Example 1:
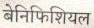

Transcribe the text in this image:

बेनिफिशियल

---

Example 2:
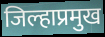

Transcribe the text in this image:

जिल्हाप्रमुख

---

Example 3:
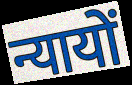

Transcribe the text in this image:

न्यायों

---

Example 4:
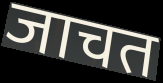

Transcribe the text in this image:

जाचत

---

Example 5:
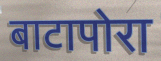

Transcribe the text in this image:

बाटापोरा